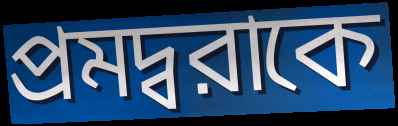
প্রমদ্বরাকে